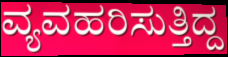
ವ್ಯವಹರಿಸುತ್ತಿದ್ದ